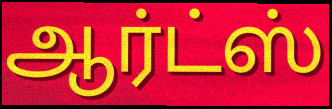
ஆர்ட்ஸ்